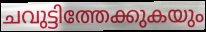
ചവുട്ടിത്തേക്കുകയും